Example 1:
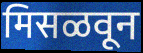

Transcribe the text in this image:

मिसळवून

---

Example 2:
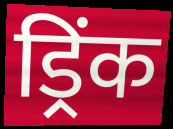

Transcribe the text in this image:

ड्रिंक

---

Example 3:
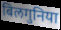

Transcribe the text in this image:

बिलगुनिया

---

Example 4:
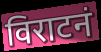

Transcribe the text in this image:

विराटनं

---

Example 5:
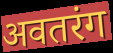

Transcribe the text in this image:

अवतरंग